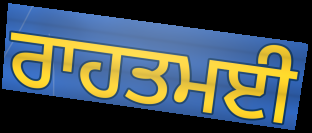
ਰਾਹਤਮਈ